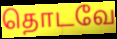
தொடவே